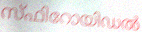
സ്ഫിറോയിഡൽ